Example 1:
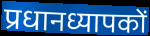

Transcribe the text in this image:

प्रधानध्यापकों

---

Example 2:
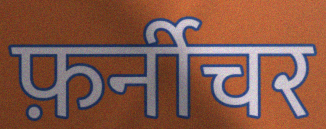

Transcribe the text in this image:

फ़र्नीचर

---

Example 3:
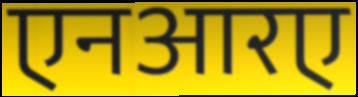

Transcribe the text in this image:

एनआरए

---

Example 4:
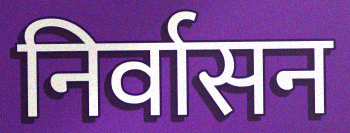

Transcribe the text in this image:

निर्वासन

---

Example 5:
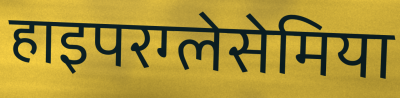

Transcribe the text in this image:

हाइपरग्लेसेमिया